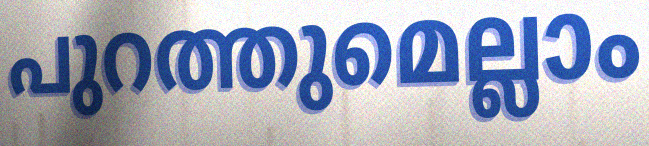
പുറത്തുമെല്ലാം